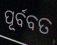
ପୂର୍ବବତ